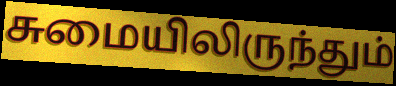
சுமையிலிருந்தும்